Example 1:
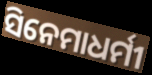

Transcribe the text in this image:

ସିନେମାଧର୍ମୀ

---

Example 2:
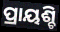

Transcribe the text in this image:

ପ୍ରାୟଶ୍ଚି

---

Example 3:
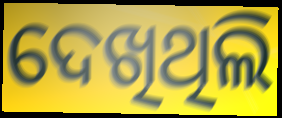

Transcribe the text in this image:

ଦେଖିଥିଲି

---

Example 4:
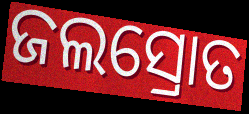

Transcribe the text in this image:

ଜଲସ୍ରୋତ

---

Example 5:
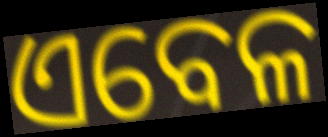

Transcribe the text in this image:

ଏବେଳ